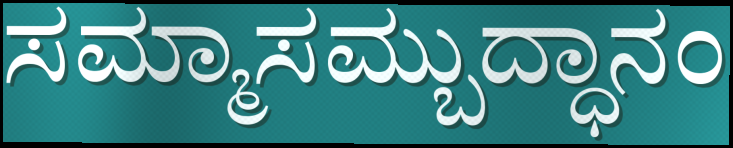
ಸಮ್ಮಾಸಮ್ಬುದ್ಧಾನಂ